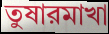
তুষারমাখা